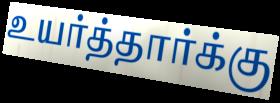
உயர்த்தார்க்கு